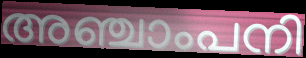
അഞ്ചാംപനി